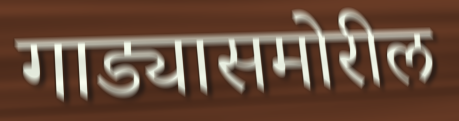
गाड्यासमोरील